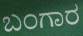
ಬಂಗಾರ